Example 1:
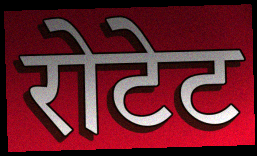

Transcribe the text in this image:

रोटेट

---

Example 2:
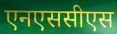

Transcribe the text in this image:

एनएससीएस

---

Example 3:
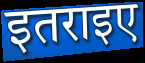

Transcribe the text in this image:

इतराइए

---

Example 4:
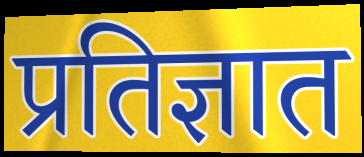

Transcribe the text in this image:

प्रतिज्ञात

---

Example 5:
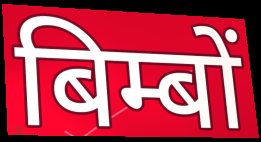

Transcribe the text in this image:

बिम्बों